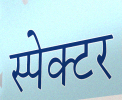
स्पेक्टर